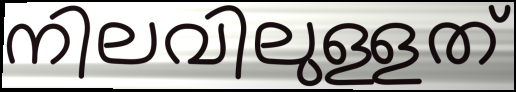
നിലവിലുള്ളത്